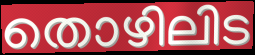
തൊഴിലിട